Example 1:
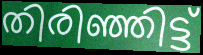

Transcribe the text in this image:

തിരിഞ്ഞിട്ട്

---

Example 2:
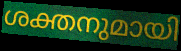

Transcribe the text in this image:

ശക്തനുമായി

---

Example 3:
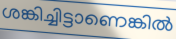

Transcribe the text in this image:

ശങ്കിച്ചിട്ടാണെങ്കിൽ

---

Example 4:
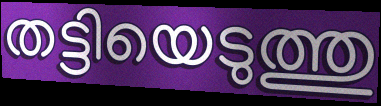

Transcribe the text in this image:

തട്ടിയെടുത്തു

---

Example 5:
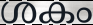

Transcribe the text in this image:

ശകം